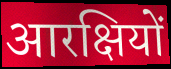
आरक्षियों